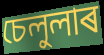
চেলুলাৰ